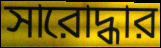
সারোদ্ধার